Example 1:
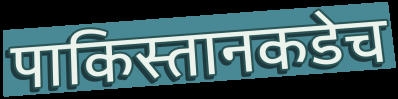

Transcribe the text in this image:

पाकिस्तानकडेच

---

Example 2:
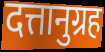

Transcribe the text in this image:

दत्तानुग्रह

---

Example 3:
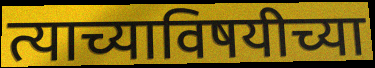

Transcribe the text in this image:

त्याच्याविषयीच्या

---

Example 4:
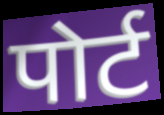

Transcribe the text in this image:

पोर्ट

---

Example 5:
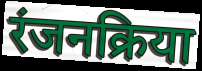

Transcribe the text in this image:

रंजनक्रिया